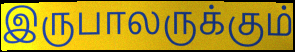
இருபாலருக்கும்